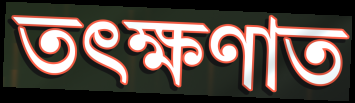
তৎক্ষণাত